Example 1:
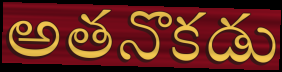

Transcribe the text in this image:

అతనొకడు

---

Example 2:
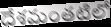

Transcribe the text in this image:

దేశమంతటిలో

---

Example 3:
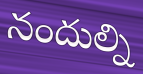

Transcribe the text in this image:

నందుల్ని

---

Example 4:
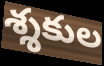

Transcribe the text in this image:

శ్శకుల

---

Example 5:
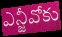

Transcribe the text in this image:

ఎన్జీవోకు